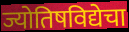
ज्योतिषविद्येचा